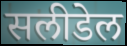
सलीडेल